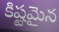
కిష్టమైన